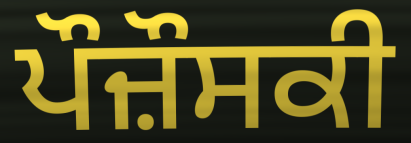
ਪੌਜ਼ੌਸਕੀ